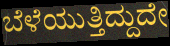
ಬೆಳೆಯುತ್ತಿದ್ದುದೇ